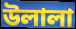
উলালা